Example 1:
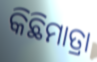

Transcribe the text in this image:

କିଛିମାତ୍ରା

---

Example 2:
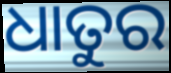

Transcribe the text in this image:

ଧାତୁର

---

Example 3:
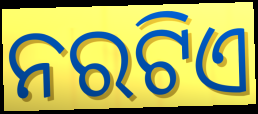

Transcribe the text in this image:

ନରଟିଏ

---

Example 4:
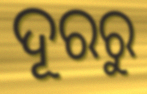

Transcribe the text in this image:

ଦୂରରୁ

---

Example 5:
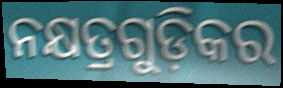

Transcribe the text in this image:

ନକ୍ଷତ୍ରଗୁଡ଼ିକର